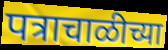
पत्राचाळीच्या